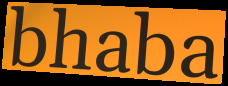
bhaba